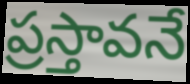
ప్రస్తావనే